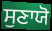
ਸੁਣਾਯੋ